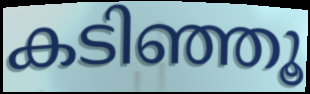
കടിഞ്ഞൂ